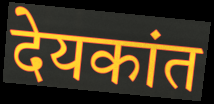
देयकांत